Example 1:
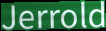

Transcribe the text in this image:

Jerrold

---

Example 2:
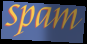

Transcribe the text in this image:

spam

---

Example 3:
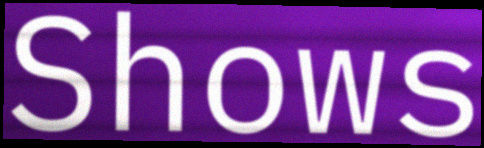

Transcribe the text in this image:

Shows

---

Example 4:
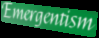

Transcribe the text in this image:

Emergentism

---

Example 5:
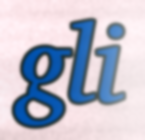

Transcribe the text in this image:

gli